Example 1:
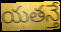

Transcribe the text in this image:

యతన్తే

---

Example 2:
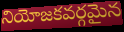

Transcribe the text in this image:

నియోజకవర్గమైన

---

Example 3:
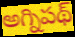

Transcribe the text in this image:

అగ్నిపథ్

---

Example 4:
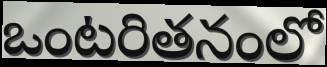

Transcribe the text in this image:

ఒంటరితనంలో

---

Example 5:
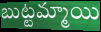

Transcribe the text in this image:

బుట్టమ్మాయి